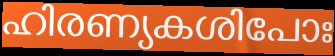
ഹിരണ്യകശിപോഃ